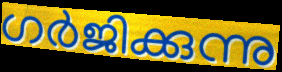
ഗർജിക്കുന്നു